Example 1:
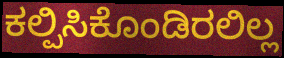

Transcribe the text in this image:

ಕಲ್ಪಿಸಿಕೊಂಡಿರಲಿಲ್ಲ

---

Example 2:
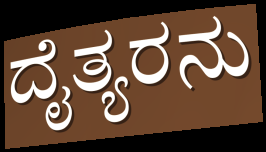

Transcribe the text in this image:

ದೈತ್ಯರನು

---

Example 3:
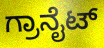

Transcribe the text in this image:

ಗ್ರಾನೈಟ್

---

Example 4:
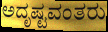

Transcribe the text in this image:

ಅದೃಷ್ಟವಂತರು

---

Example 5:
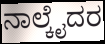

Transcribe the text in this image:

ನಾಲ್ಕೈದರ